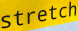
stretch